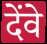
देंवे